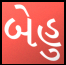
બેહુ